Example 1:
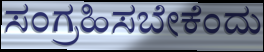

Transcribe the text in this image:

ಸಂಗ್ರಹಿಸಬೇಕೆಂದು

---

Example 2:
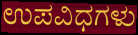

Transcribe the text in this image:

ಉಪವಿಧಗಳು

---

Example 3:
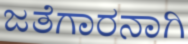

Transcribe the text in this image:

ಜತೆಗಾರನಾಗಿ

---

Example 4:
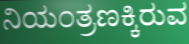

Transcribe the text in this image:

ನಿಯಂತ್ರಣಕ್ಕಿರುವ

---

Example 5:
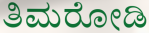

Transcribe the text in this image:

ತಿಮರೋಡಿ